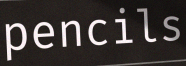
pencils